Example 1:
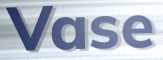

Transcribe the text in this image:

Vase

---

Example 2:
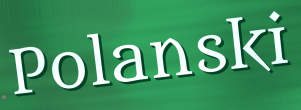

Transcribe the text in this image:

Polanski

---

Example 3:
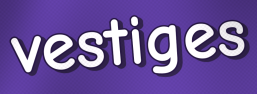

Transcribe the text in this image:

vestiges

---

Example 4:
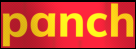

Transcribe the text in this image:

panch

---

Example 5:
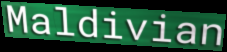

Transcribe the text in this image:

Maldivian